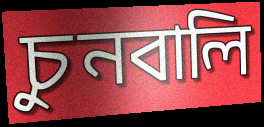
চুনবালি